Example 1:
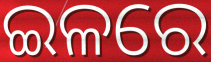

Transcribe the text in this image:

ଇଳରେ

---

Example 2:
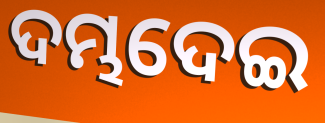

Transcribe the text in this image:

ଦମ୍ଭଦେଇ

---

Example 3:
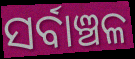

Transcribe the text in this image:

ସର୍ବାଞ୍ଚଳ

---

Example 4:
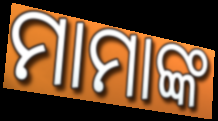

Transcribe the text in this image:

ମାମାଙ୍କ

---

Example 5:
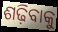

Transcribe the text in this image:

ଶଢ଼ିବାକୁ